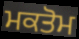
ਮਕਤੋਮ